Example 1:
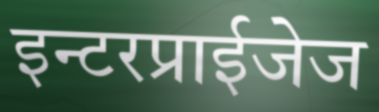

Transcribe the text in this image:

इन्टरप्राईजेज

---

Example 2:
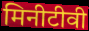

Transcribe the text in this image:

मिनीटीवी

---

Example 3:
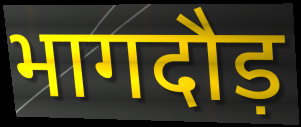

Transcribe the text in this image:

भागदौड़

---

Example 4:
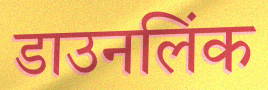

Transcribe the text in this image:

डाउनलिंक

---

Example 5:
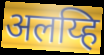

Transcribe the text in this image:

अलय्हि